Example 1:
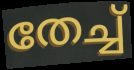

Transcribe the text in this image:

തേച്ച്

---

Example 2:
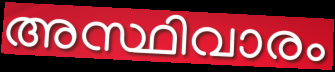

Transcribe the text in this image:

അസ്ഥിവാരം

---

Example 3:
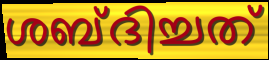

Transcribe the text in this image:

ശബ്ദിച്ചത്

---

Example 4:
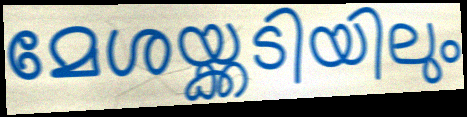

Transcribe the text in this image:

മേശയ്ക്കടിയിലും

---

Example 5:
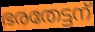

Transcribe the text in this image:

ഭരതേട്ടന്